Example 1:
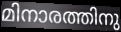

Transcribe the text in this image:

മിനാരത്തിനു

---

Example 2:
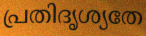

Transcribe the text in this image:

പ്രതിദൃശ്യതേ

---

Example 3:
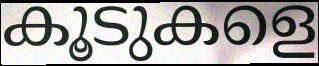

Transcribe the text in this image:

കൂടുകളെ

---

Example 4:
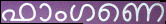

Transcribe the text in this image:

ഫാംഗണെ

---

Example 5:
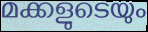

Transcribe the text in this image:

മക്കളുടെയും